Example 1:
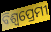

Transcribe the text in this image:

ବିଶ୍ବପ୍ରେମୀ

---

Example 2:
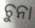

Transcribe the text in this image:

ଚୁନା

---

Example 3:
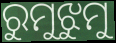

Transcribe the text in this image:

ରୁମୁଝୁମୁ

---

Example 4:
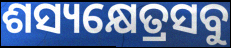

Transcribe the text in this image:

ଶସ୍ୟକ୍ଷେତ୍ରସବୁ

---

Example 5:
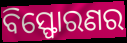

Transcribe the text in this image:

ବିସ୍ଫୋରଣର